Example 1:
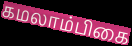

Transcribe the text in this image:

கமலாம்பிகை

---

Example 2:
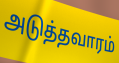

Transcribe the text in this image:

அடுத்தவாரம்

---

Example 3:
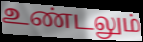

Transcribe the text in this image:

உண்டலும்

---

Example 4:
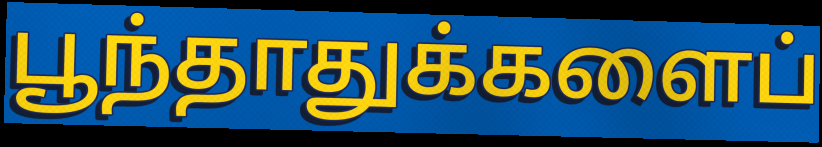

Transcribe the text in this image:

பூந்தாதுக்களைப்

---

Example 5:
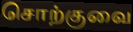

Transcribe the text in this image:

சொற்குவை